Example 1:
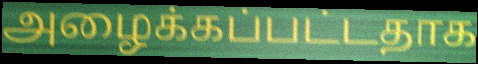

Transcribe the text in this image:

அழைக்கப்பட்டதாக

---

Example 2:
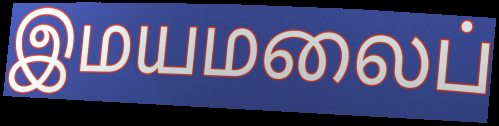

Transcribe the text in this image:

இமயமலைப்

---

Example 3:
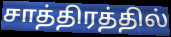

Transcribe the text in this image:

சாத்திரத்தில்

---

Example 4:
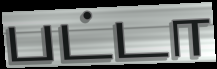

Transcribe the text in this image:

பட்டா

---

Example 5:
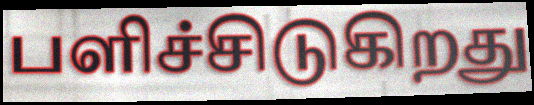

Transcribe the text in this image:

பளிச்சிடுகிறது